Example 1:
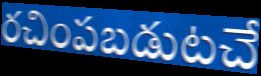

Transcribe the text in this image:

రచింపబడుటచే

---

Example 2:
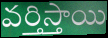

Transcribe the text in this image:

వర్తిస్తాయి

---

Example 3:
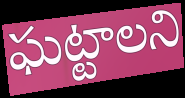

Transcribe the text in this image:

ఘట్టాలని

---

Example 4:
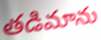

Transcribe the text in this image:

తడిమాను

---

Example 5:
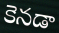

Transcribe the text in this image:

కెనడా